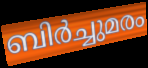
ബിർച്ചുമരം